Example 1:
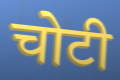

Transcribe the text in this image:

चोटी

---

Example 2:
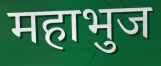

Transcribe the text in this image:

महाभुज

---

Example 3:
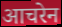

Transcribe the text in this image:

आचरेन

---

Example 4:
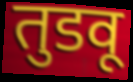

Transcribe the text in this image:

तुडवू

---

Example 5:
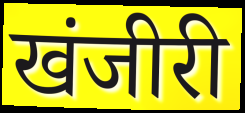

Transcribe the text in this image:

खंजीरी